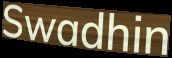
Swadhin